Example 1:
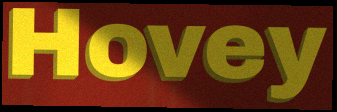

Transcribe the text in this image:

Hovey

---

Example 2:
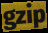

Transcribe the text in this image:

gzip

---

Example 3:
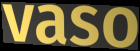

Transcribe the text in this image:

vaso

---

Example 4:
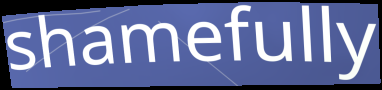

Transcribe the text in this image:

shamefully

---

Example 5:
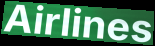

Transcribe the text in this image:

Airlines